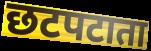
छटपटाता